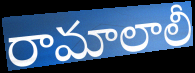
రామాలాలీ